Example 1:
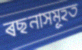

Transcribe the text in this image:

ৰছনাসমূহত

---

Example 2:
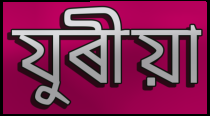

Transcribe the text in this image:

যুৰীয়া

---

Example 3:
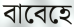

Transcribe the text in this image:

বাবেহে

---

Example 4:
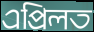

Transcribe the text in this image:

এপ্ৰিলত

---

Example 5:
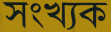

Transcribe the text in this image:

সংখ্যক